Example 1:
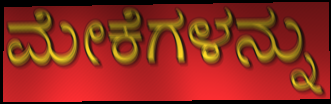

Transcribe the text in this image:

ಮೇಕೆಗಳನ್ನು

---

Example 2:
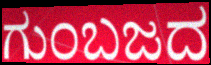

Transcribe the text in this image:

ಗುಂಬಜದ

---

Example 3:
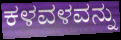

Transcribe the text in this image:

ಕಳವಳವನ್ನು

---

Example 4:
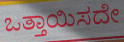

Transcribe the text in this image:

ಒತ್ತಾಯಿಸದೇ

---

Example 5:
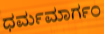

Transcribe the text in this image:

ಧರ್ಮಮಾರ್ಗಂ